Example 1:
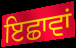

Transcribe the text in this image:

ਇਛਾਵਾਂ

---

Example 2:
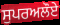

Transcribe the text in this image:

ਸੁਪਰਅਲੌਏ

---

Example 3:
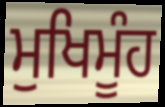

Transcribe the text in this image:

ਮੁਖਿਮੂੰਹ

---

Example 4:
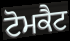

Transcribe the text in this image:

ਟੋਮਕੈਟ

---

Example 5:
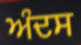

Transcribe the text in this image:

ਅੰਦਸ